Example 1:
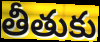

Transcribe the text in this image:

తీతుకు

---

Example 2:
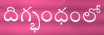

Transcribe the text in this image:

దిగ్భంధంలో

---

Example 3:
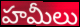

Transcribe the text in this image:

హమీలు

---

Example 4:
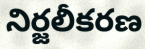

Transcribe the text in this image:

నిర్జలీకరణ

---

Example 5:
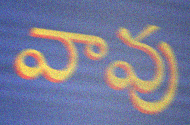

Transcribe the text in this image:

వావు